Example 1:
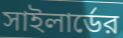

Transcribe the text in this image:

সাইলার্ডের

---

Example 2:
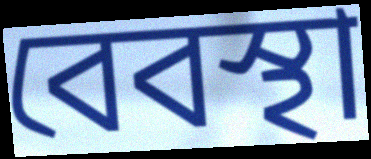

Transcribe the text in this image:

বেবস্থা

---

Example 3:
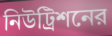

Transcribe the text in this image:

নিউট্রিশনের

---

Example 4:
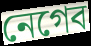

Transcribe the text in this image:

নেগেব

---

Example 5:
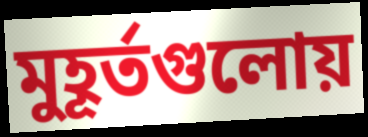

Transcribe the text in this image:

মুহূর্তগুলোয়